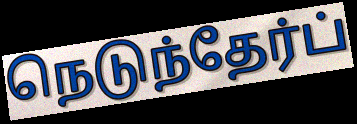
நெடுந்தேர்ப்